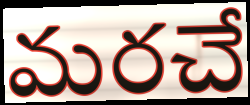
మరచే